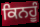
ਕਿਨਹੂੰ